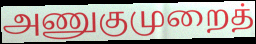
அணுகுமுறைத்